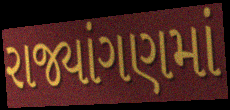
રાજ્યાંગણમાં